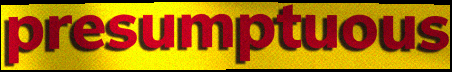
presumptuous